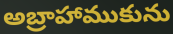
అబ్రాహాముకును